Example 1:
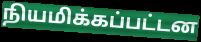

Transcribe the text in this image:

நியமிக்கப்பட்டன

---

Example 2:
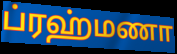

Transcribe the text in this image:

ப்ரஹ்மணா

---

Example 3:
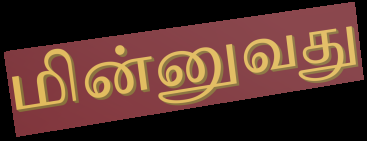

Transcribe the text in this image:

மின்னுவது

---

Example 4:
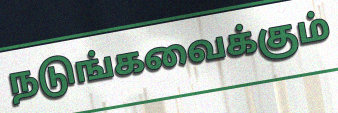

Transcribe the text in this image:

நடுங்கவைக்கும்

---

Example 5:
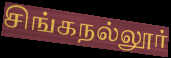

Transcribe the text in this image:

சிங்கநல்லூர்